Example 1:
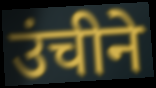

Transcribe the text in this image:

उंचीने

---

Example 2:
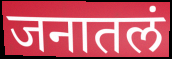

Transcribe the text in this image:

जनातलं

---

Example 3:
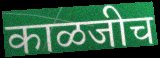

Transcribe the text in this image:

काळजीच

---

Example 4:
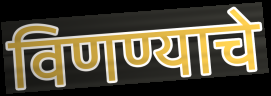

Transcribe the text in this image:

विणण्याचे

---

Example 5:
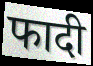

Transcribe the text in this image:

फादी